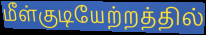
மீள்குடியேற்றத்தில்